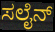
ಸಲೈನ್